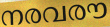
നരവരൗ